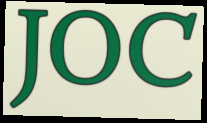
JOC